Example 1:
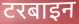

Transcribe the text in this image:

टरबाइन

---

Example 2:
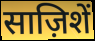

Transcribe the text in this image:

साज़िशें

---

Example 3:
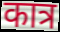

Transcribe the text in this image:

कात्र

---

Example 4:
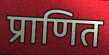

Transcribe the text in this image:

प्राणित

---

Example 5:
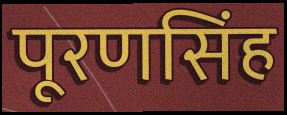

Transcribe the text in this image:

पूरणसिंह